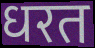
धरत